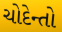
ચોદેન્તો